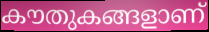
കൗതുകങ്ങളാണ്